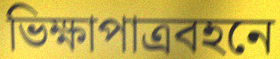
ভিক্ষাপাত্রবহনে